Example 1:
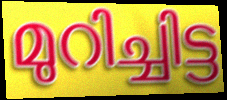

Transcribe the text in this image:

മുറിച്ചിട്ട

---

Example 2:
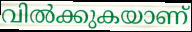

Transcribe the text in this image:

വിൽക്കുകയാണ്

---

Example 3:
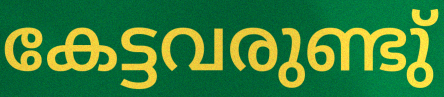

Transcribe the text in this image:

കേട്ടവരുണ്ടു്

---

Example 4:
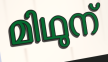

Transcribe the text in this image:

മിഥുന്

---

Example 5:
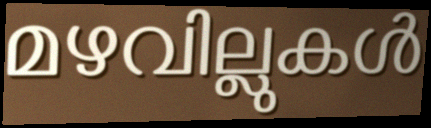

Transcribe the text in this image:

മഴവില്ലുകൾ